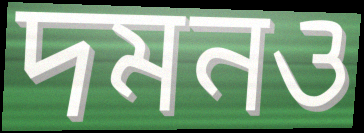
দমনও